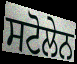
ਸਟੋਲੇਨ